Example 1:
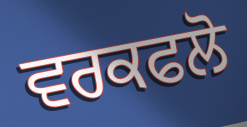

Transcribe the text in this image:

ਵਰਕਫਲੋ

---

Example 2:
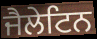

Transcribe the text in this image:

ਜੈਲੇਟਿਨ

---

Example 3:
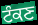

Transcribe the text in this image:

ਟੰਕਣ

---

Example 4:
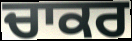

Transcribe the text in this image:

ਚਾਕਰ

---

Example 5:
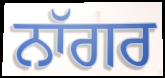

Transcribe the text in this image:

ਨਾੱਗਰ